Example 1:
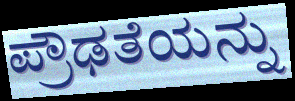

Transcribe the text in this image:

ಪ್ರೌಢತೆಯನ್ನು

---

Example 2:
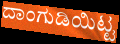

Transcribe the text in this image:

ದಾಂಗುಡಿಯಿಟ್ಟ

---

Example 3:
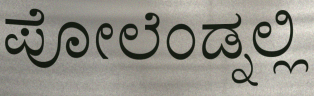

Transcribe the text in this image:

ಪೋಲೆಂಡ್ನಲ್ಲಿ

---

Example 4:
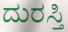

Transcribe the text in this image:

ದುರಸ್ತಿ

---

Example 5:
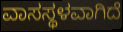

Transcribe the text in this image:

ವಾಸಸ್ಥಳವಾಗಿದೆ